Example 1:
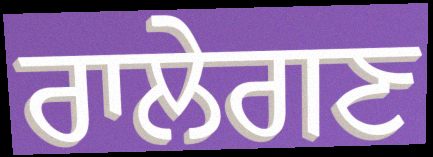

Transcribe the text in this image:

ਰਾਲੇਗਣ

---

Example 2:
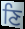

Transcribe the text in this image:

ਣਿ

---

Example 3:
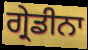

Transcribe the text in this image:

ਗ੍ਰੇਡੀਨਾ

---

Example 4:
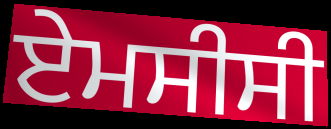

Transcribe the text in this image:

ਏਮਸੀਸੀ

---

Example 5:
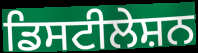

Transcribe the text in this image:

ਡਿਸਟੀਲੇਸ਼ਨ